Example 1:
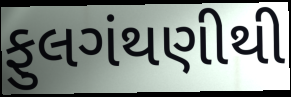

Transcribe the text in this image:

ફુલગંથણીથી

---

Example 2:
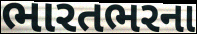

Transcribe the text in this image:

ભારતભરના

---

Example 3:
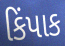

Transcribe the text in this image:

કિંપાક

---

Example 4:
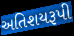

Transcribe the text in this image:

અતિશયરૂપી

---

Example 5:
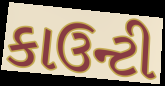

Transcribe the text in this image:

કાઉન્ટી